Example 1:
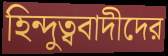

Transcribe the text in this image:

হিন্দুত্ববাদীদের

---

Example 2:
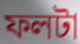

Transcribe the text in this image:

ফলটা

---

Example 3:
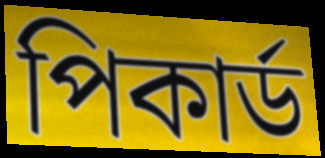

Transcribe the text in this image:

পিকার্ড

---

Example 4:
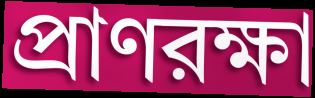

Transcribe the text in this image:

প্রাণরক্ষা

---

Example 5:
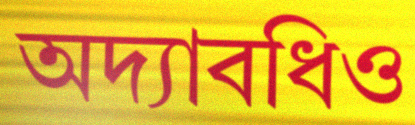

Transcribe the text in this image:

অদ্যাবধিও